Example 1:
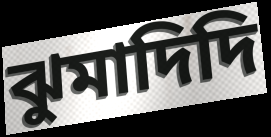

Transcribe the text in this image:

ঝুমাদিদি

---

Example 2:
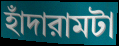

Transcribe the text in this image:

হাঁদারামটা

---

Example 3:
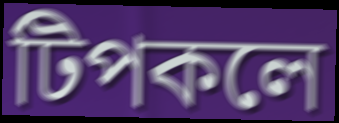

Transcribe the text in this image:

টিপকলে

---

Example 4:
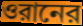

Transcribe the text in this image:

ওরানের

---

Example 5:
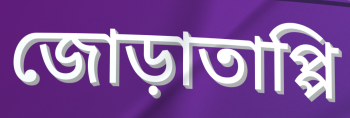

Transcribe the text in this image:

জোড়াতাপ্পি